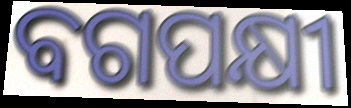
ବଗପକ୍ଷୀ